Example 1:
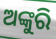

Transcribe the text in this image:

ଅଙ୍କୁରି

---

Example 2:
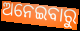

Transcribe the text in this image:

ଅନେଇବାରୁ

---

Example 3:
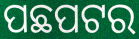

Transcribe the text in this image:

ପଛପଟର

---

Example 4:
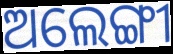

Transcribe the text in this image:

ଅଲେଙ୍ଗୀ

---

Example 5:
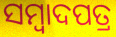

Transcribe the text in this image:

ସମ୍ବାଦପତ୍ର